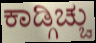
ಕಾಡ್ಗಿಚ್ಚು